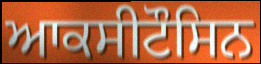
ਆਕਸੀਟੌਸਿਨ